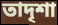
তাদৃশা